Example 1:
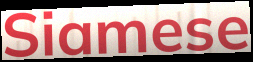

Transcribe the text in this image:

Siamese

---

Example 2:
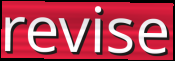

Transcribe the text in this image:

revise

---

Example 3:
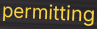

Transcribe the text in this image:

permitting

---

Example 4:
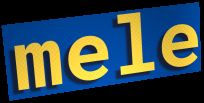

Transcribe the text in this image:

mele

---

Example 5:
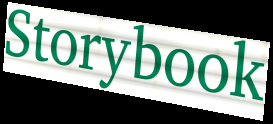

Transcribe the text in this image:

Storybook